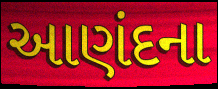
આણંદના